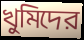
খুমিদের